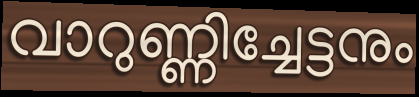
വാറുണ്ണിച്ചേട്ടനും